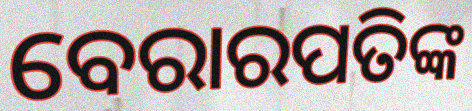
ବେରାରପତିଙ୍କ